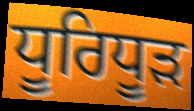
ਧੂਰਿਧੂੜ